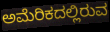
ಅಮೆರಿಕದಲ್ಲಿರುವ